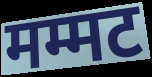
मम्मट